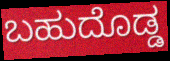
ಬಹುದೊಡ್ಡ